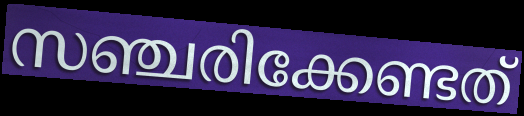
സഞ്ചരിക്കേണ്ടത്